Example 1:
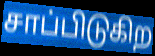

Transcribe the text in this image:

சாப்பிடுகிற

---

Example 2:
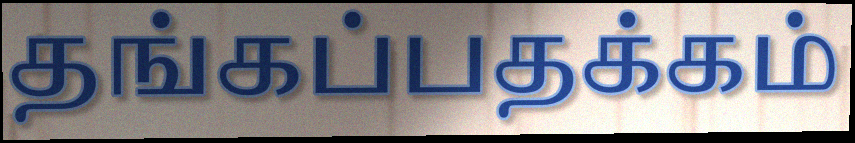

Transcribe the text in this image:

தங்கப்பதக்கம்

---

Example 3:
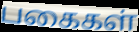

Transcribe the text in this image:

பகைகள்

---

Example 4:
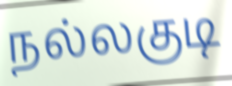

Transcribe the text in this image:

நல்லகுடி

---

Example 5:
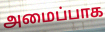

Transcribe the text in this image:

அமைப்பாக